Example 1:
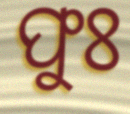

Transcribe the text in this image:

ଫୁଃ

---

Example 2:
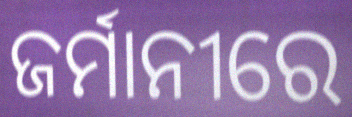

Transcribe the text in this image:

ଜର୍ମାନୀରେ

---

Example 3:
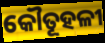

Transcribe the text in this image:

କୌତୂହଳୀ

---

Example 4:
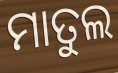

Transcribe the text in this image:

ମାତୁଲ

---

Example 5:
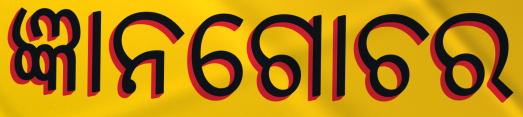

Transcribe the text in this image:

ଜ୍ଞାନଗୋଚର